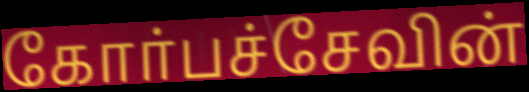
கோர்பச்சேவின்